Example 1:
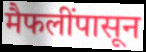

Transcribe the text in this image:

मैफलींपासून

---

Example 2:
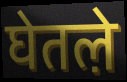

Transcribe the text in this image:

घेतल़े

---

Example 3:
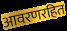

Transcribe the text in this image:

आवरणरहित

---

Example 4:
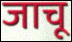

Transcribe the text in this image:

जाचू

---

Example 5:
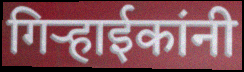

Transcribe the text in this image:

गिऱ्हाईकांनी